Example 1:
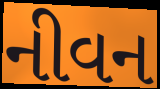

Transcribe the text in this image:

નીવન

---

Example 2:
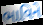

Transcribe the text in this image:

ભાવિને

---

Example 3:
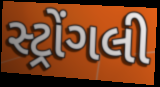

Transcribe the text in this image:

સ્ટ્રોંગલી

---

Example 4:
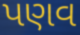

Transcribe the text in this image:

પણવ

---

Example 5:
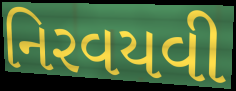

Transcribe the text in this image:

નિરવયવી